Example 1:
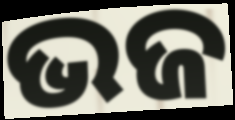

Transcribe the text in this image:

ଭଜ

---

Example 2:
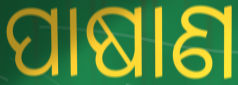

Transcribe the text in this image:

ପାଷାଣ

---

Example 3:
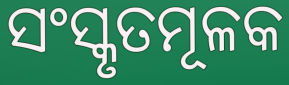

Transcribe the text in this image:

ସଂସ୍କୃତମୂଳକ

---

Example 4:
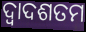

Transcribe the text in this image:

ଦ୍ୱାଦଶତମ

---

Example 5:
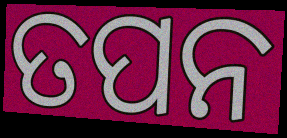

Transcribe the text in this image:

ତପନ